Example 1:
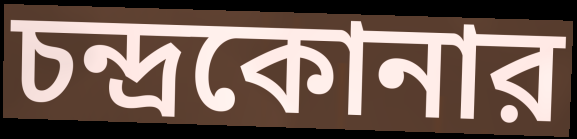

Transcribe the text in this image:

চন্দ্রকোনার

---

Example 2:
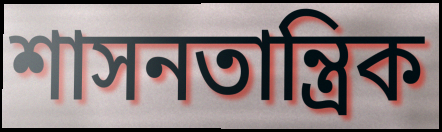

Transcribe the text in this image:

শাসনতান্ত্রিক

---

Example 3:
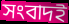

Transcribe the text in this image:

সংবাদই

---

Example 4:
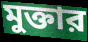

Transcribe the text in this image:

মুক্তার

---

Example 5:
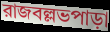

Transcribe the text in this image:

রাজবল্লভপাড়া